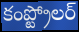
కంప్ట్రోలర్